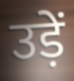
उड़ें